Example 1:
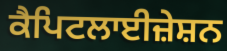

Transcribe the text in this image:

ਕੈਪਿਟਲਾਈਜ਼ੇਸ਼ਨ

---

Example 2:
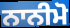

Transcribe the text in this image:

ਨਾਨੀਮੋ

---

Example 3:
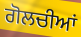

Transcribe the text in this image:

ਗੋਲਚੀਆਂ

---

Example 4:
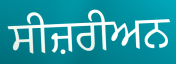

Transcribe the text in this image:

ਸੀਜ਼ਰੀਅਨ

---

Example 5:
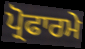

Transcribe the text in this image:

ਪ੍ਰੋਫਾਰਮੇ